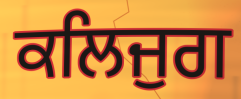
ਕਲਿਜੁਗ